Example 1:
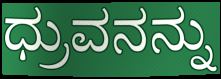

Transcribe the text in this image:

ಧ್ರುವನನ್ನು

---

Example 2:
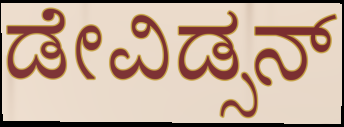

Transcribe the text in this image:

ಡೇವಿಡ್ಸನ್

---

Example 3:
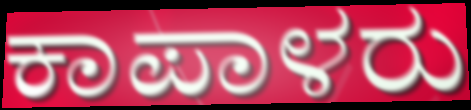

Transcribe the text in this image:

ಕಾಪಾಳರು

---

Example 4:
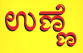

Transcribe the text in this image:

ಉಣ್ಣೆ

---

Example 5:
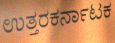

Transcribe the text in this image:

ಉತ್ತರಕರ್ನಾಟಕ